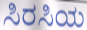
ಸಿರಸಿಯ